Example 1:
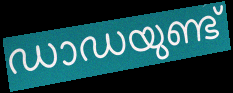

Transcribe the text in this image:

ഡാഡയുണ്ട്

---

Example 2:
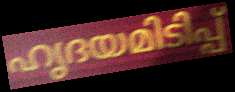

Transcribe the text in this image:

ഹൃദയമിടിപ്പ്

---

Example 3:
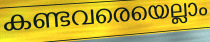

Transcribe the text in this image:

കണ്ടവരെയെല്ലാം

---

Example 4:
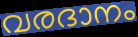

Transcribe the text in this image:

വരദാനം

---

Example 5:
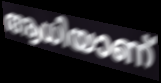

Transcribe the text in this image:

ആധിയാണ്